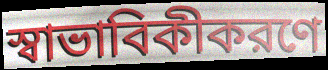
স্বাভাবিকীকরণে